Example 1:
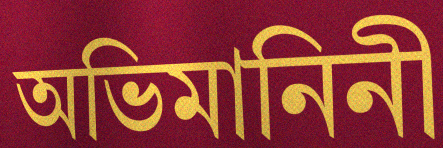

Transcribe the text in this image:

অভিমানিনী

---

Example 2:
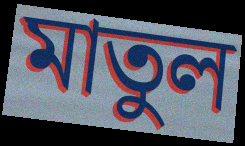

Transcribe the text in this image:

মাতুল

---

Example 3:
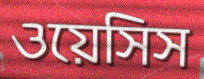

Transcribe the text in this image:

ওয়েসিস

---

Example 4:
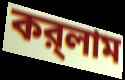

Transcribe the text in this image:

কর্‌লাম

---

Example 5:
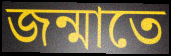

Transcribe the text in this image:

জন্মাতে